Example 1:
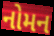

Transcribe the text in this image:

નોમન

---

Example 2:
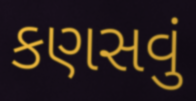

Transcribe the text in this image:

કણસવું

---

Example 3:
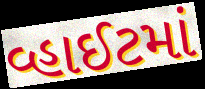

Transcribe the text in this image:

વ્હાઈટમાં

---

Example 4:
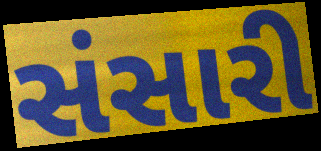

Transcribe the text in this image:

સંસારી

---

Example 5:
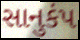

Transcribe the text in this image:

સાનુકંપ